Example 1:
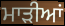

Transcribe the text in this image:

ਮਾੜੀਆਂ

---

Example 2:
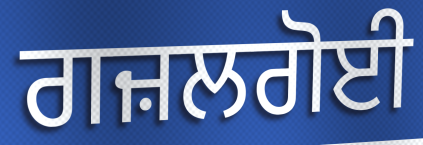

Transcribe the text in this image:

ਗਜ਼ਲਗੋਈ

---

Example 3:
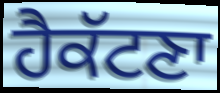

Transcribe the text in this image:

ਹੈਕੱਟਣਾ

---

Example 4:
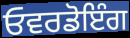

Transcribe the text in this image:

ਓਵਰਡੋਇੰਗ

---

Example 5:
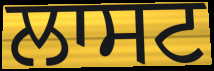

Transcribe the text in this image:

ਲਾਸਟ